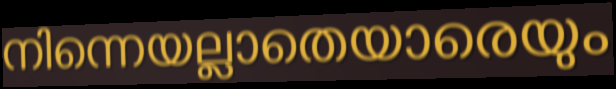
നിന്നെയല്ലാതെയാരെയും